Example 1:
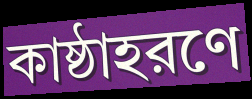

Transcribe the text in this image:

কাষ্ঠাহরণে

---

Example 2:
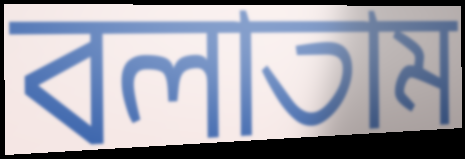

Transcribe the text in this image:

বলাতাম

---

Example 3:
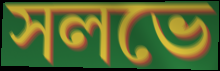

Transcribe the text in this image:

সলভে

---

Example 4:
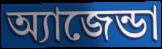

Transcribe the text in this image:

অ্যাজেন্ডা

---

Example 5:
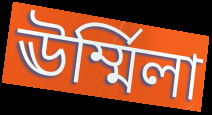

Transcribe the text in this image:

ঊর্ম্মিলা